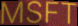
MSFT